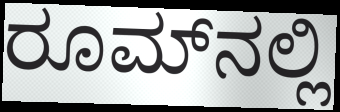
ರೂಮ್‌ನಲ್ಲಿ